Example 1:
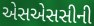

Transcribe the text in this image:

એસએસસીની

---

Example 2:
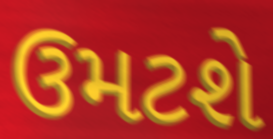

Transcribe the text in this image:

ઉમટશે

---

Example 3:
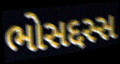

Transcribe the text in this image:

ભોસદ્દસ્સ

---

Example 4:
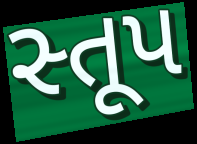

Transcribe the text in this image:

સ્તૂપ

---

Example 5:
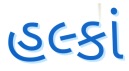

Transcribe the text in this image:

હલ્કાં